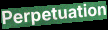
Perpetuation